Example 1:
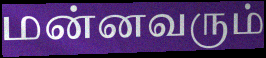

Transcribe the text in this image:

மன்னவரும்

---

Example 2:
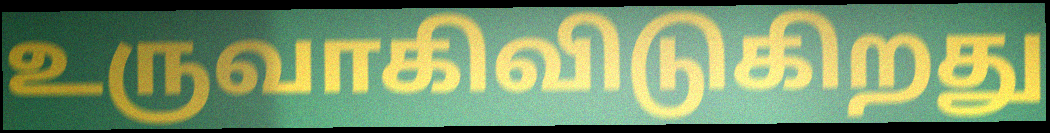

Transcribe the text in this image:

உருவாகிவிடுகிறது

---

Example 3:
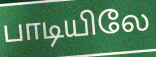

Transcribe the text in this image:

பாடியிலே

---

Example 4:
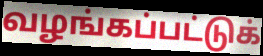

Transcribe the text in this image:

வழங்கப்பட்டுக்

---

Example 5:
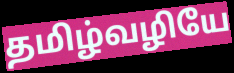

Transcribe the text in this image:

தமிழ்வழியே